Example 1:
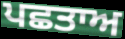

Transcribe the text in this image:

ਪਛਤਾਅ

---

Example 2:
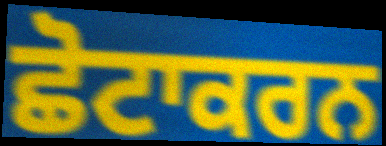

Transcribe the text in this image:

ਛੋਟਾਕਰਨ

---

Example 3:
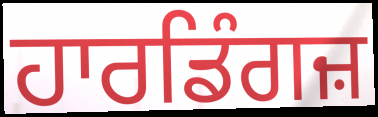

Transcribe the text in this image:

ਹਾਰਡਿੰਗਜ਼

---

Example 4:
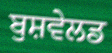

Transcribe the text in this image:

ਬੁਸ਼ਵੇਲਡ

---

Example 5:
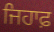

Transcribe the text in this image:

ਜਿਹਾਫ਼